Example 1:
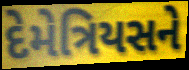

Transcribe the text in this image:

દેમેત્રિયસને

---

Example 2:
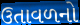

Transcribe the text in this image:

ઉતાવળનો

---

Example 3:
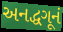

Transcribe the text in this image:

અનદ્ધગૂનં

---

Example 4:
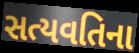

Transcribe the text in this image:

સત્યવતિના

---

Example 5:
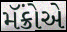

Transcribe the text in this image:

મૅંક્રોએ